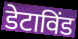
डेटाविंड